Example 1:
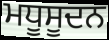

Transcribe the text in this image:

ਮਧੂਸੂਦਨ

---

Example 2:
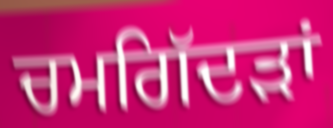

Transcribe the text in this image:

ਚਮਗਿੱਦੜਾਂ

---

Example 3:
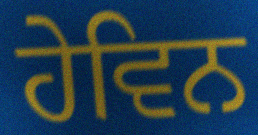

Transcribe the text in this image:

ਹੇਵਿਨ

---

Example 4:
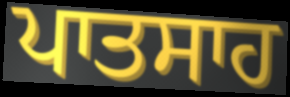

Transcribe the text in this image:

ਪਾਤਸਾਹ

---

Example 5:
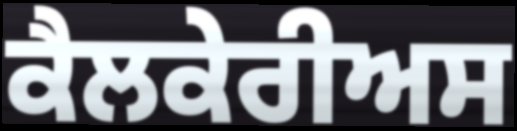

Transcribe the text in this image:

ਕੈਲਕੇਰੀਅਸ